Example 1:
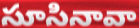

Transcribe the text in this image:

సూసినావా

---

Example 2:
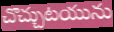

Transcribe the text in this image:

చొచ్చుటయును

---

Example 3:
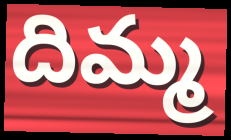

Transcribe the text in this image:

దిమ్మ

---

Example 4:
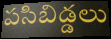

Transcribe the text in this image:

పసిబిడ్డలు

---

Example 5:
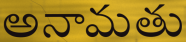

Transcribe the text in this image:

అనామతు